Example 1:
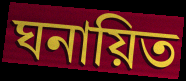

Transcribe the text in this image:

ঘনায়িত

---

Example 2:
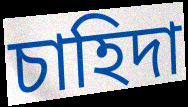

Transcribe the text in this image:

চাহিদা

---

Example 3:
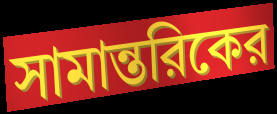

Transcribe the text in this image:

সামান্তরিকের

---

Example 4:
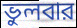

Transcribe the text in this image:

ভুলবার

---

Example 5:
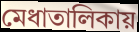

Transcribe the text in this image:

মেধাতালিকায়